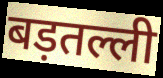
बड़तल्ली